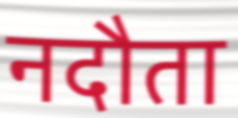
नदौता